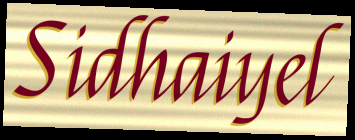
Sidhaiyel